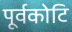
पूर्वकोटि